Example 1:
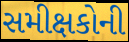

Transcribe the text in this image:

સમીક્ષકોની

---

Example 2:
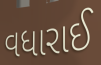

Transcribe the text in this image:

વધારાઈ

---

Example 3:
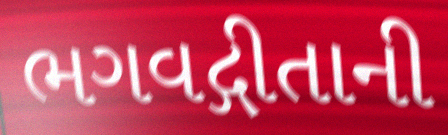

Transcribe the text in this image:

ભગવદ્ગીતાની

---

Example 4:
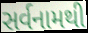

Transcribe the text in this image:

સર્વનામથી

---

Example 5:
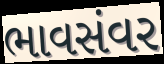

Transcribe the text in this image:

ભાવસંવર